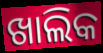
ଖାଲିକ